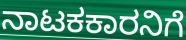
ನಾಟಕಕಾರನಿಗೆ